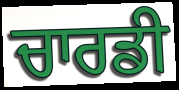
ਚਾਰਡੀ